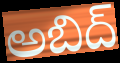
అబిద్